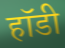
हॉडी